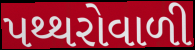
પથ્થરોવાળી